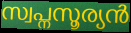
സ്വപ്നസൂര്യൻ